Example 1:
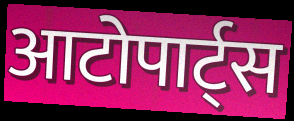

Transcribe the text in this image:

आटोपार्ट्स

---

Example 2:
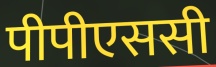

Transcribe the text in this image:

पीपीएससी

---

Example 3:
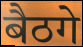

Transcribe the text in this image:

बैठगे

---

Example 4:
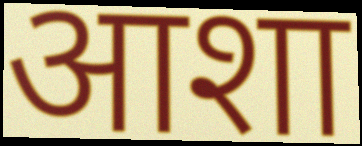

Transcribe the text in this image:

आशा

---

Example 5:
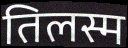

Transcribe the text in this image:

तिलस्म